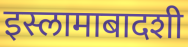
इस्लामाबादशी